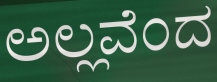
ಅಲ್ಲವೆಂದ